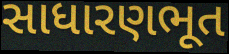
સાધારણભૂત